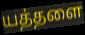
யத்தளை